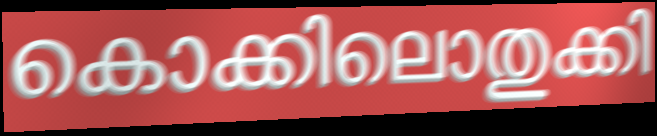
കൊക്കിലൊതുക്കി